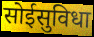
सोईसुविधा